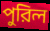
পুরিল